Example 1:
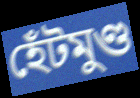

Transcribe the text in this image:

হেঁটমুণ্ড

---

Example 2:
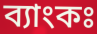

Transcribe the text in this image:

ব্যাংকঃ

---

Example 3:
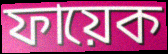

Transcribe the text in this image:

ফায়েক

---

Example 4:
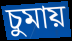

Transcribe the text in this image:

চুমায়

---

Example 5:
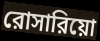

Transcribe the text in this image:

রোসারিয়ো